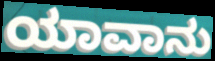
ಯಾವಾನು